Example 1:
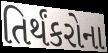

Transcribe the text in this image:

તિર્થંકરોના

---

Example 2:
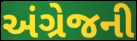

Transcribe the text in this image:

અંગ્રેજની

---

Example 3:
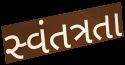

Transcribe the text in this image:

સ્વંતત્રતા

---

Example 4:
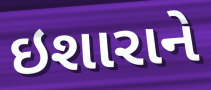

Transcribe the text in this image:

ઇશારાને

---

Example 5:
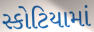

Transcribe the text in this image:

સ્કોટિયામાં